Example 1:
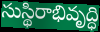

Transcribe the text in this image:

సుస్థిరాభివృద్ధి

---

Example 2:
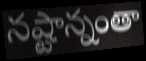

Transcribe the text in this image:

నష్టాన్నంతా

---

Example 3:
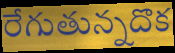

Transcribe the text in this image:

రేగుతున్నదొక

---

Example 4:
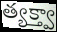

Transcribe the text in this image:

త్యక్త్వా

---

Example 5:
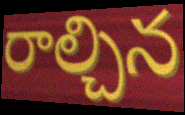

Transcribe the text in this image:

రాల్చిన